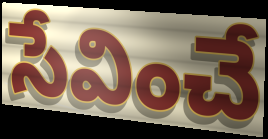
సేవించే